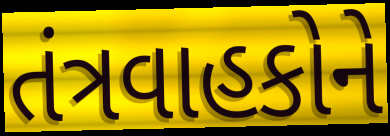
તંત્રવાહકોને